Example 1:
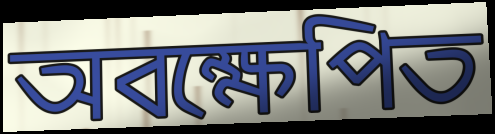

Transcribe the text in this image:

অবক্ষেপিত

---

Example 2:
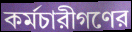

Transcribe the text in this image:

কর্মচারীগণের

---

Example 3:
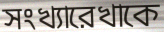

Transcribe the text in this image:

সংখ্যারেখাকে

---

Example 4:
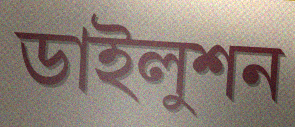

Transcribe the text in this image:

ডাইলুশন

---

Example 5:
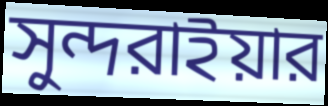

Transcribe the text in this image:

সুন্দরাইয়ার